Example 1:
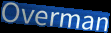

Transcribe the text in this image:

Overman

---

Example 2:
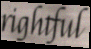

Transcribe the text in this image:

rightful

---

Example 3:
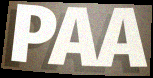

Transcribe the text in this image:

PAA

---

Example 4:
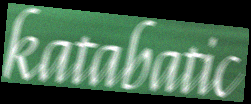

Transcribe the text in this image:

katabatic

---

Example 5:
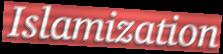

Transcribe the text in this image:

Islamization